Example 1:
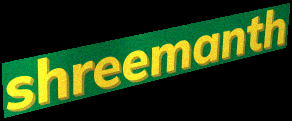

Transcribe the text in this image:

shreemanth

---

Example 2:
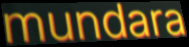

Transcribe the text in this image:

mundara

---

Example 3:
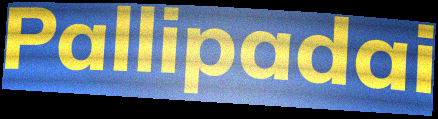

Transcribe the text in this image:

Pallipadai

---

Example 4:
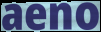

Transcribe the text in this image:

aeno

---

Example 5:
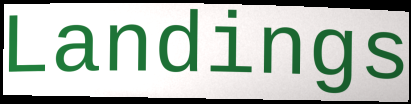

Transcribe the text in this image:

Landings